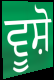
ਵੂਸ਼ੋ